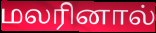
மலரினால்